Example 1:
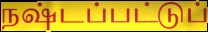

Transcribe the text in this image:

நஷ்டப்பட்டுப்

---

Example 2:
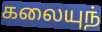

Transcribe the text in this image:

கலையுந்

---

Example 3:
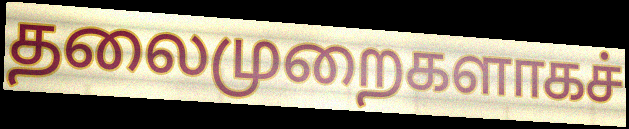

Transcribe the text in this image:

தலைமுறைகளாகச்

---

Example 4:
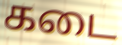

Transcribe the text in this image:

கடை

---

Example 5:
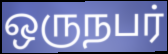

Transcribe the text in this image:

ஒருநபர்